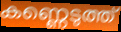
കണ്ണെടുത്ത്